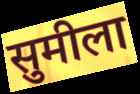
सुमीला